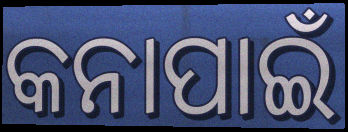
କନାପାଇଁ